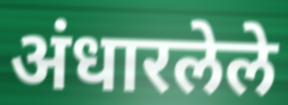
अंधारलेले